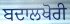
ਬਦਾਲਖੋਰੀ